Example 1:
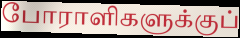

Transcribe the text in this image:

போராளிகளுக்குப்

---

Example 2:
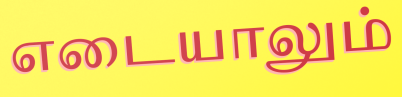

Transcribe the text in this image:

எடையாலும்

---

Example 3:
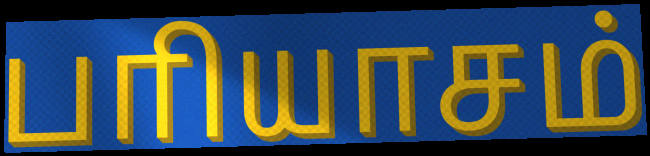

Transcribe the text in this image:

பரியாசம்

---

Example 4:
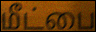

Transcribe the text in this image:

மீட்பை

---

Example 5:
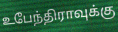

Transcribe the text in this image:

உபேந்திராவுக்கு